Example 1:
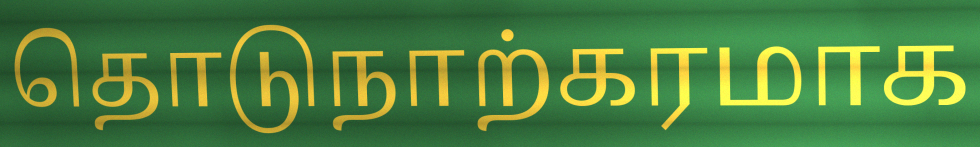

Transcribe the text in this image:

தொடுநாற்கரமாக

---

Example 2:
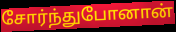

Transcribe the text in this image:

சோர்ந்துபோனான்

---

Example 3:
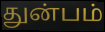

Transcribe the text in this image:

துன்பம்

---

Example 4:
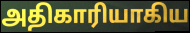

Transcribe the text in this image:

அதிகாரியாகிய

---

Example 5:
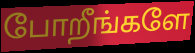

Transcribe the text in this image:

போறீங்களே